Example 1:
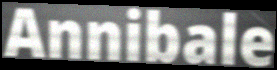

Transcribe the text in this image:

Annibale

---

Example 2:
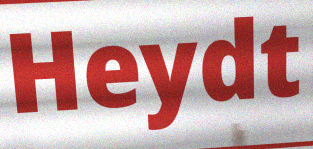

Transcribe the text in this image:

Heydt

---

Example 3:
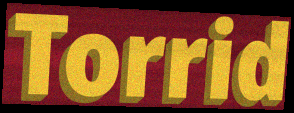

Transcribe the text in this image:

Torrid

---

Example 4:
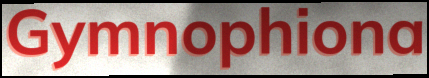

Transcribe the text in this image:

Gymnophiona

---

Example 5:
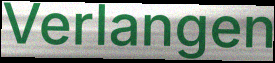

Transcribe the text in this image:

Verlangen